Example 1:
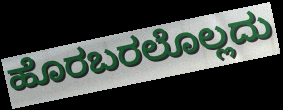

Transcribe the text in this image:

ಹೊರಬರಲೊಲ್ಲದು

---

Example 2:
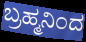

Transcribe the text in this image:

ಬ್ರಹ್ಮನಿಂದ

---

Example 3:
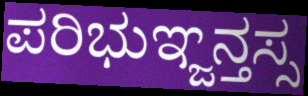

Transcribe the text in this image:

ಪರಿಭುಞ್ಜನ್ತಸ್ಸ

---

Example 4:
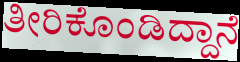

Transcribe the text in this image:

ತೀರಿಕೊಂಡಿದ್ದಾನೆ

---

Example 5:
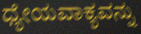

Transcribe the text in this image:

ಧ್ಯೇಯವಾಕ್ಯವನ್ನು